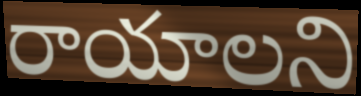
రాయాలని